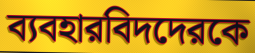
ব্যবহারবিদদেরকে